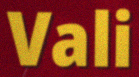
Vali